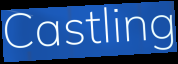
Castling